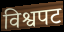
विश्वपट